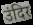
उंदिर